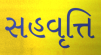
સહવૃત્તિ